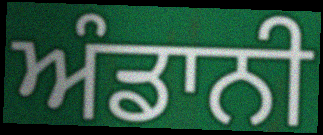
ਅੰਡਾਨੀ